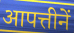
आपत्तीनें